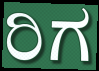
ರಿಗ